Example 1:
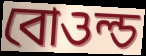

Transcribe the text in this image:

বোওল্ড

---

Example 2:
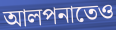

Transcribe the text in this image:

আলপনাতেও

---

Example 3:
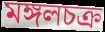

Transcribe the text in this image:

মঙ্গলচক্র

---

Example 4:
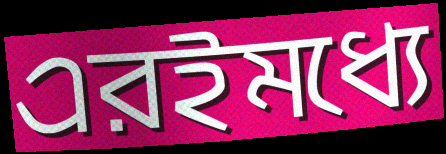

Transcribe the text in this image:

এরইমধ্যে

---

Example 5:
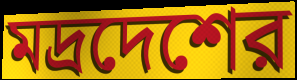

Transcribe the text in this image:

মদ্রদেশের